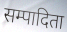
सम्पादिता